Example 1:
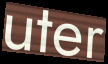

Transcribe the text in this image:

uter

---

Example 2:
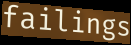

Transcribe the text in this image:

failings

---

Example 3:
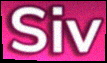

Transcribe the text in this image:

Siv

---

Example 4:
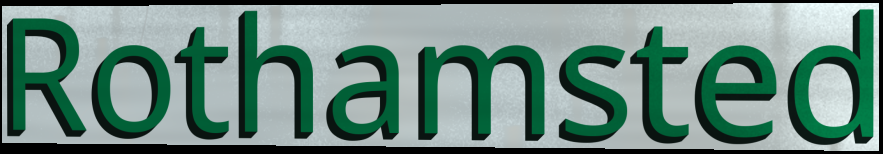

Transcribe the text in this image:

Rothamsted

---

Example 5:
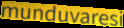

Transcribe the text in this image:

munduvaresi